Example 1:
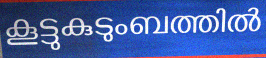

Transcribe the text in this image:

കൂട്ടുകുടുംബത്തിൽ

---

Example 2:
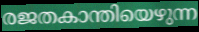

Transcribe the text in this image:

രജതകാന്തിയെഴുന്ന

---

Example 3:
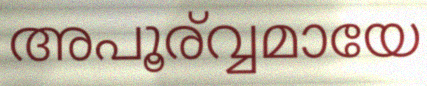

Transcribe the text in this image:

അപൂര്വ്വമായേ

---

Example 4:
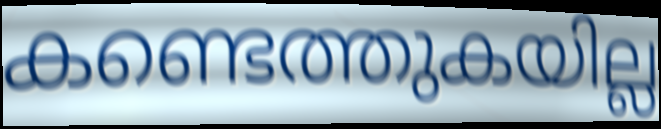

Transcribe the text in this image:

കണ്ടെത്തുകയില്ല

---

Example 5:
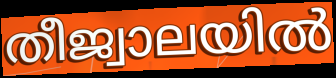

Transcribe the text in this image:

തീജ്വാലയിൽ